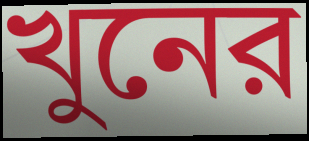
খুনের